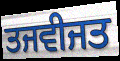
ਤਜਵੀਜਤ